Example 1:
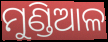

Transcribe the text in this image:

ମୁଣ୍ଡିଆଳ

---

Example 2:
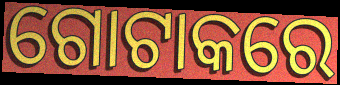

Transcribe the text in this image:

ଗୋଟାକରେ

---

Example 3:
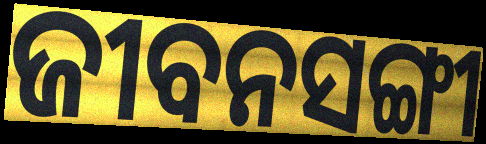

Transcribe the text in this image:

ଜୀବନସଙ୍ଗୀ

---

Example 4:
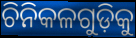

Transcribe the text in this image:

ଚିନିକଳଗୁଡ଼ିକୁ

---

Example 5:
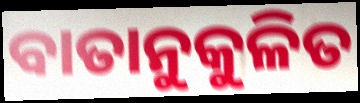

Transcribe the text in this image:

ବାତାନୁକୁଳିତ